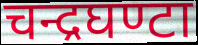
चन्द्रघण्टा